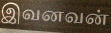
இவனவன்